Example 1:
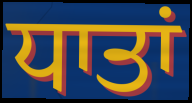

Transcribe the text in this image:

ਧਾਤਾਂ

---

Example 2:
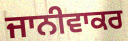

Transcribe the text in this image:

ਜਾਨੀਵਾਕਰ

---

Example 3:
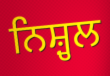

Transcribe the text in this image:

ਨਿਸ਼੍ਚਲ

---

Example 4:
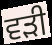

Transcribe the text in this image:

ਵੜੀ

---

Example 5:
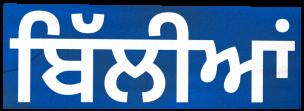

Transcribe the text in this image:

ਬਿੱਲੀਆਂ